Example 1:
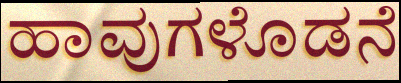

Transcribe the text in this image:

ಹಾವುಗಳೊಡನೆ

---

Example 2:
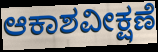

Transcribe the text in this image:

ಆಕಾಶವೀಕ್ಷಣೆ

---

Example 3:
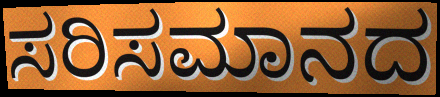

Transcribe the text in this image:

ಸರಿಸಮಾನದ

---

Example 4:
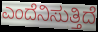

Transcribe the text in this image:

ಎಂದೆನಿಸುತ್ತಿದೆ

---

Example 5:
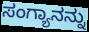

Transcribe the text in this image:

ಸಂಗ್ಯಾನನ್ನು